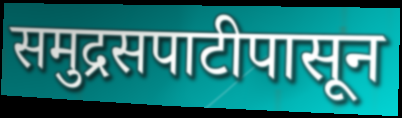
समुद्रसपाटीपासून